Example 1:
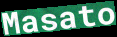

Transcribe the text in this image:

Masato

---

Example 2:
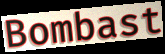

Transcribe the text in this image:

Bombast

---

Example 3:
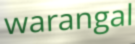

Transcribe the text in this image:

warangal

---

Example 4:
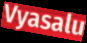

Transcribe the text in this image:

Vyasalu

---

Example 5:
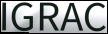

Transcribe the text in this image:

IGRAC